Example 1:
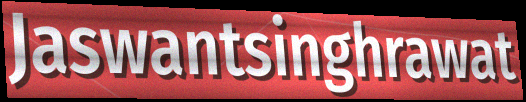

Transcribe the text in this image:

Jaswantsinghrawat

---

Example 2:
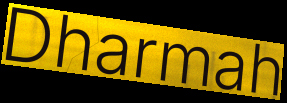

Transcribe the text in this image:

Dharmah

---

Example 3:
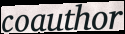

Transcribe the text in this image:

coauthor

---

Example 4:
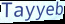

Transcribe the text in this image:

Tayyeb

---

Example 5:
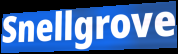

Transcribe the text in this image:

Snellgrove